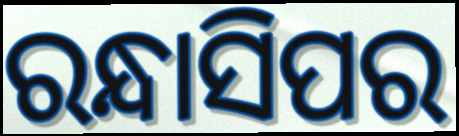
ରନ୍ଧାସିପର